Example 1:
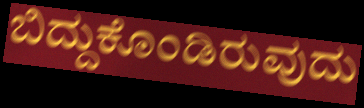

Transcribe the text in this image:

ಬಿದ್ದುಕೊಂಡಿರುವುದು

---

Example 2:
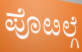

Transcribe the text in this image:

ಪೊೞಲ್ಗೆ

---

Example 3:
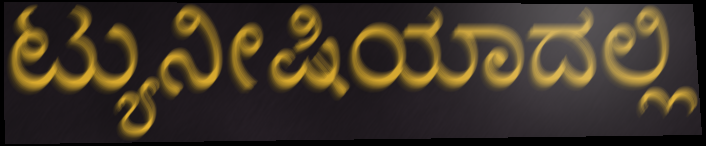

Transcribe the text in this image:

ಟ್ಯುನೀಷಿಯಾದಲ್ಲಿ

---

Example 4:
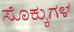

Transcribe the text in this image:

ಸೊಕ್ಕುಗಳ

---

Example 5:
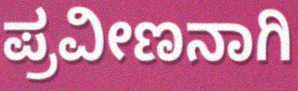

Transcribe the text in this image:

ಪ್ರವೀಣನಾಗಿ